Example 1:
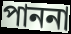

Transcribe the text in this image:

পাননা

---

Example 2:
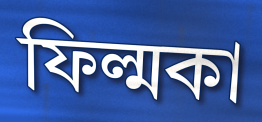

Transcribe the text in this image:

ফিল্মকা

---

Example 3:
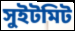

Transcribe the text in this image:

সুইটমিট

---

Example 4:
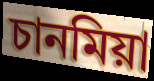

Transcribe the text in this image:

চানমিয়া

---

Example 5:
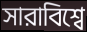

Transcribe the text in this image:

সারাবিশ্বে